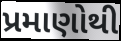
પ્રમાણોથી